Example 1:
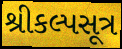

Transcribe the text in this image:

શ્રીકલ્પસૂત્ર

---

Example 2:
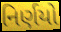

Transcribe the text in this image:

નિર્ણયો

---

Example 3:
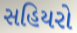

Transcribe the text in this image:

સહિયરો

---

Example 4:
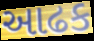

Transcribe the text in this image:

આઢક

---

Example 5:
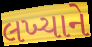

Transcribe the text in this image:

લખ્યાને